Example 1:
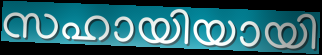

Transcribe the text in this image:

സഹായിയായി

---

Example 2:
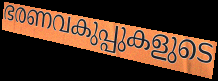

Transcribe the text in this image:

ഭരണവകുപ്പുകളുടെ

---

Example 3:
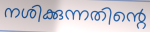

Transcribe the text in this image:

നശിക്കുന്നതിന്റെ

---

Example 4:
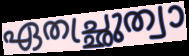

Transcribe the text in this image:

ഏതച്ഛ്രുത്വാ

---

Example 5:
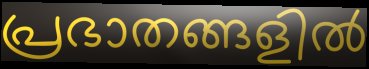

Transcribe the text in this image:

പ്രഭാതങ്ങളിൽ